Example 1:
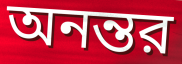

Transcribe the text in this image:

অনন্তর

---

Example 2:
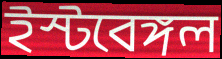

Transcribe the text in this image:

ইস্টবেঙ্গল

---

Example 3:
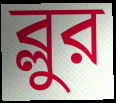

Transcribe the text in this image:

ব্লুর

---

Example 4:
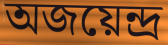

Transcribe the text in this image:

অজয়েন্দ্র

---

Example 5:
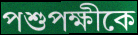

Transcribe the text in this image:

পশুপক্ষীকে